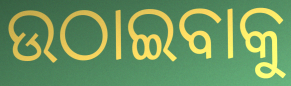
ଉଠାଇବାକୁ